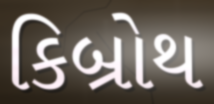
કિબ્રોથ